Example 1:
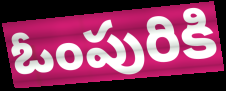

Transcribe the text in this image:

ఓంపురికి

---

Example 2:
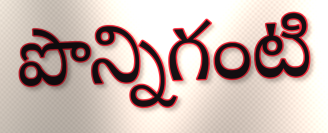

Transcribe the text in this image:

పొన్నిగంటి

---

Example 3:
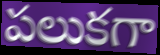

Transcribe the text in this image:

పలుకగా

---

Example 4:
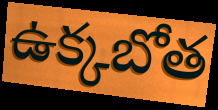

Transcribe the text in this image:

ఉక్కబోత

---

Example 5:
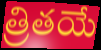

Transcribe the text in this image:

త్రితయే